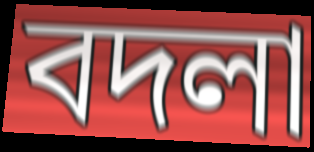
বদলা